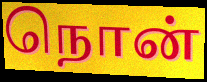
நொன்